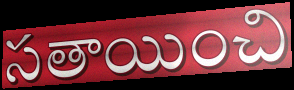
సతాయించి